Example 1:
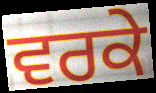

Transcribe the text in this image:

ਵਰਕੇ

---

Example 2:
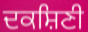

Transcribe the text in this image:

ਦਕਸ਼ਿਣੀ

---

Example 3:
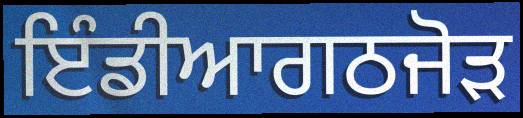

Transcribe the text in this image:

ਇੰਡੀਆਗਠਜੋੜ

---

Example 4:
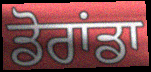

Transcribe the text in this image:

ਡੋਰਾਂਡਾ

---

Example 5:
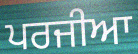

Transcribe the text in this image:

ਪਰਜੀਆ